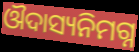
ଔଦାସ୍ୟନିମଗ୍ନ